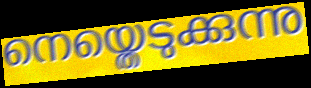
നെയ്തെടുക്കുന്നു